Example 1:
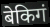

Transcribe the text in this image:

बेकिगं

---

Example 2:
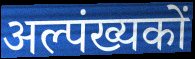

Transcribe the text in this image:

अल्पंख्यकों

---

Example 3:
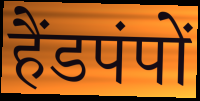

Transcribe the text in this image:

हैंडपंपों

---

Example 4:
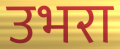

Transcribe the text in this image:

उभरा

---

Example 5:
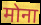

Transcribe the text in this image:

मोना